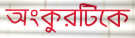
অংকুরটিকে